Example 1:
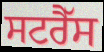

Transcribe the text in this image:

ਸਟਰੈੱਸ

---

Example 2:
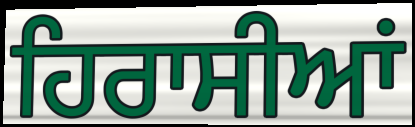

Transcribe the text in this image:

ਹਿਰਾਸੀਆਂ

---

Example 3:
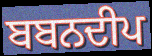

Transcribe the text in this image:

ਬਬਨਦੀਪ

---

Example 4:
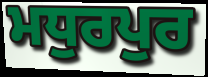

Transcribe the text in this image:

ਮਧੁਰਪੁਰ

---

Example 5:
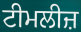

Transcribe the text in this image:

ਟੀਮਲੀਜ਼